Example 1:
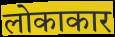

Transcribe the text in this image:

लोकाकार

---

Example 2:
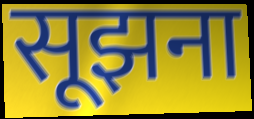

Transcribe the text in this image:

सूझना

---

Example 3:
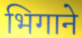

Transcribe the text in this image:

भिगाने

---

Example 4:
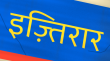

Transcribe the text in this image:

इज़्तिरार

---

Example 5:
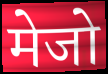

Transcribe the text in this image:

मेजो